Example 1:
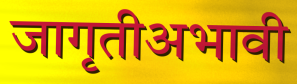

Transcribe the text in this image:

जागृतीअभावी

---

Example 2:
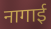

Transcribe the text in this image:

नागाई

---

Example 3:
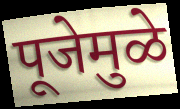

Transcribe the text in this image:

पूजेमुळे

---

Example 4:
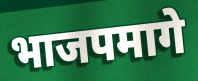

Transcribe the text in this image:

भाजपमागे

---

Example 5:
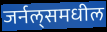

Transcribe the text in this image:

जर्नल्समधील